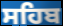
ਸਹਿਬ